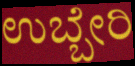
ಉಬ್ಬೇರಿ